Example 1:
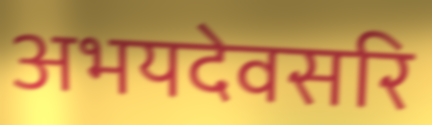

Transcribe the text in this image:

अभयदेवसरि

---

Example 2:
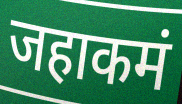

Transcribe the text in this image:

जहाकमं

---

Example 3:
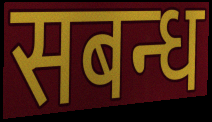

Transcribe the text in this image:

सबन्ध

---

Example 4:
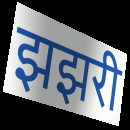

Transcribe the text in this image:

झझरी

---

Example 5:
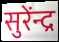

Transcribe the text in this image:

सुरेंन्द्र